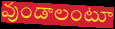
వుండాలంటూ